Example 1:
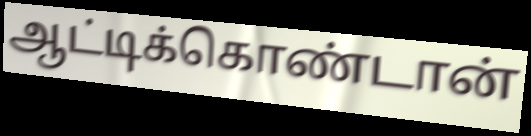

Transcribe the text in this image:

ஆட்டிக்கொண்டான்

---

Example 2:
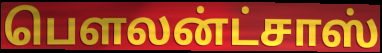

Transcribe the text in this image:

பௌலன்ட்சாஸ்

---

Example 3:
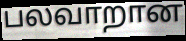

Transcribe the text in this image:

பலவாறான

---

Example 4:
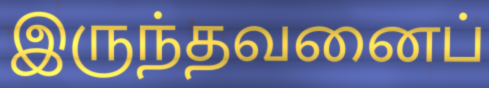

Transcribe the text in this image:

இருந்தவனைப்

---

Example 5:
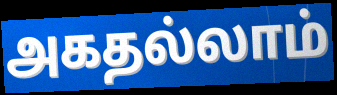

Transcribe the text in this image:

அகதல்லாம்